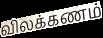
விலக்கணம்